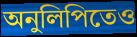
অনুলিপিতেও